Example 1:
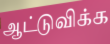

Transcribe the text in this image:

ஆட்டுவிக்க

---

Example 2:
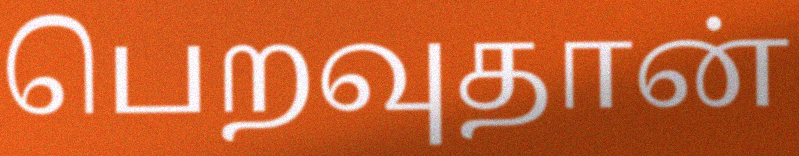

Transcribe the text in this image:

பெறவுதான்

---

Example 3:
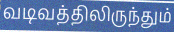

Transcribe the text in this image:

வடிவத்திலிருந்தும்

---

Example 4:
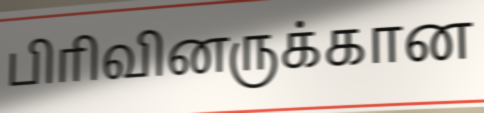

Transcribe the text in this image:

பிரிவினருக்கான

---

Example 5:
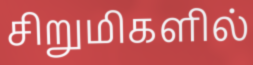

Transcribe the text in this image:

சிறுமிகளில்